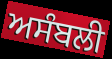
ਅਸੰਬਲੀ